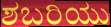
ಶಬರಿಯು